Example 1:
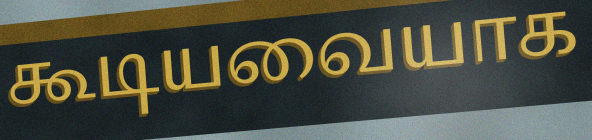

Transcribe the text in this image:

கூடியவையாக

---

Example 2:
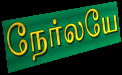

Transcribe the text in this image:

நேர்லயே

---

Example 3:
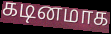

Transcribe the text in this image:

கடினமாக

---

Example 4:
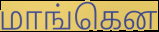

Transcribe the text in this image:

மாங்கென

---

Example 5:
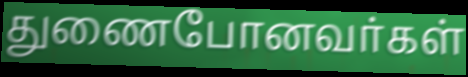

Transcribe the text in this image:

துணைபோனவர்கள்